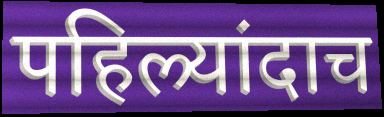
पहिल्यांदाच